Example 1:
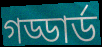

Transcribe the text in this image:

গড্ডার্ড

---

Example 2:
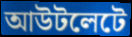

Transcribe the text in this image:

আউটলেটে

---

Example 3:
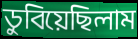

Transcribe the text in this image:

ডুবিয়েছিলাম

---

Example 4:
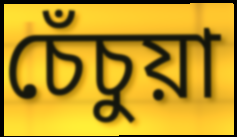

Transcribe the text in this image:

চেঁচুয়া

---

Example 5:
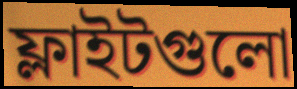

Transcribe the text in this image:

ফ্লাইটগুলো